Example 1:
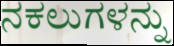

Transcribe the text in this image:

ನಕಲುಗಳನ್ನು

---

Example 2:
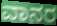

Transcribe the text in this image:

ವಾನರ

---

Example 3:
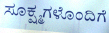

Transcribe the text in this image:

ಸೂಕ್ಷ್ಮಗಳೊಂದಿಗೆ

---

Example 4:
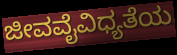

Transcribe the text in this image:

ಜೀವವೈವಿಧ್ಯತೆಯ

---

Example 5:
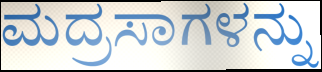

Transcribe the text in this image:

ಮದ್ರಸಾಗಳನ್ನು